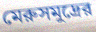
মেরুসমুদ্রের